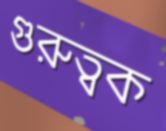
গুৰুত্বক